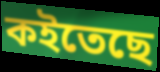
কইতেছে